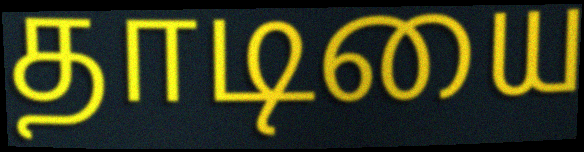
தாடியை